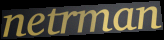
netrman